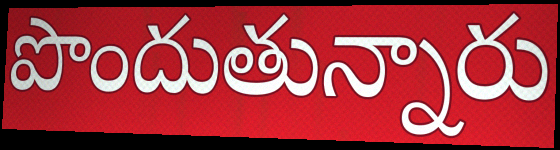
పొందుతున్నారు